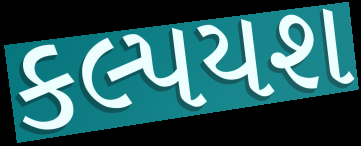
કલ્પયશ